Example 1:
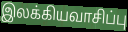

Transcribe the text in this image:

இலக்கியவாசிப்பு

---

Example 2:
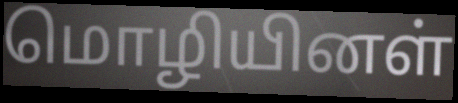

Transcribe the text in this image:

மொழியினள்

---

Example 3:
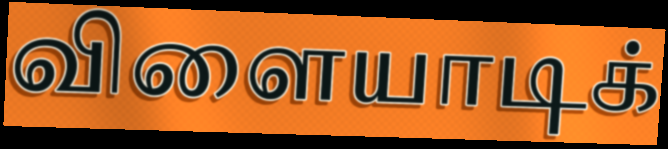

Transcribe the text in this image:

விளையாடிக்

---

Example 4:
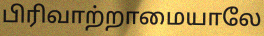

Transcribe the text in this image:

பிரிவாற்றாமையாலே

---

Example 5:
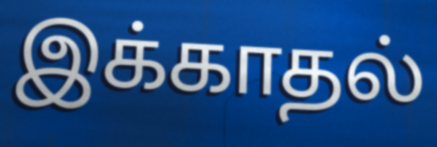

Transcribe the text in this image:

இக்காதல்